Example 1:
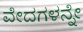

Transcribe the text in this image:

ವೇದಗಳನ್ನೇ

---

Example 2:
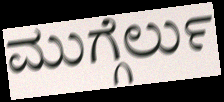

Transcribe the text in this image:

ಮುಗ್ಗೆರ್ಲು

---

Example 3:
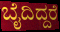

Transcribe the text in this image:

ಬೈದಿದ್ದರೆ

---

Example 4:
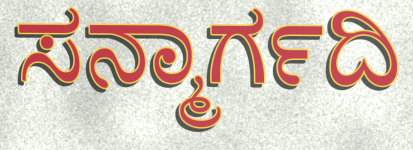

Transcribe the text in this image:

ಸನ್ಮಾರ್ಗದಿ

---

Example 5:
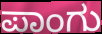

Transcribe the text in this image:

ಪಾಂಗು